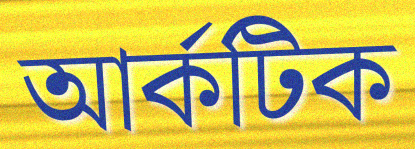
আর্কটিক